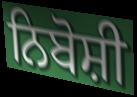
ਨਿਬੋਸ਼ੀ